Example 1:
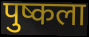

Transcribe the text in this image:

पुष्कला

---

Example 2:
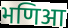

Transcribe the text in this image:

भणिआ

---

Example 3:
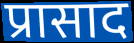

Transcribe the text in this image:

प्रासाद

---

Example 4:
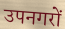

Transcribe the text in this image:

उपनगरों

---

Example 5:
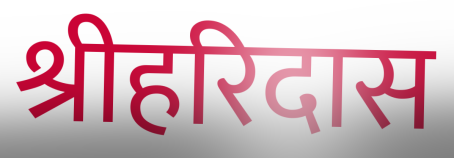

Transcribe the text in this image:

श्रीहरिदास